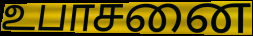
உபாசனை